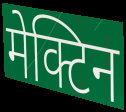
मेक्टिन